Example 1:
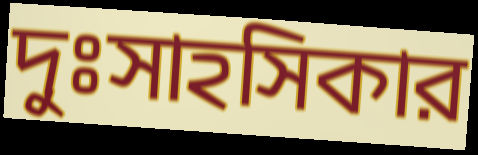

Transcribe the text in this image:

দুঃসাহসিকার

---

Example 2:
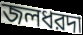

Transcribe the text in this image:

জলধরদা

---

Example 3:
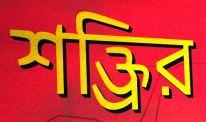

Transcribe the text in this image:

শক্ত্রির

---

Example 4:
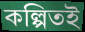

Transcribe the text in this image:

কল্পিতই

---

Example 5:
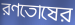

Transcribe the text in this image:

রণতোষের